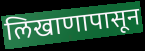
लिखाणापासून